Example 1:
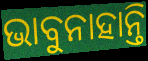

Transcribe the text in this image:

ଭାବୁନାହାନ୍ତି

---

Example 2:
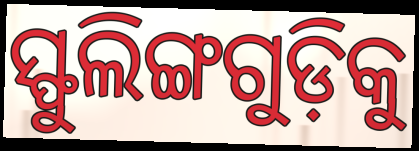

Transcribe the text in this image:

ସ୍ଫୁଲିଙ୍ଗଗୁଡ଼ିକୁ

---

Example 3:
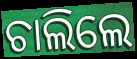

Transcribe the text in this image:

ଚାଲିଲେ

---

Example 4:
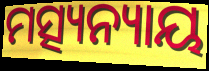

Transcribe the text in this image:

ମତ୍ସ୍ୟନ୍ୟାୟ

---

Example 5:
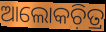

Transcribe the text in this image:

ଆଲୋକଚ଼ିତ୍ର